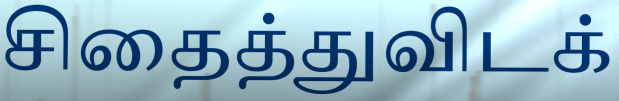
சிதைத்துவிடக்